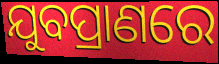
ଯୁବପ୍ରାଣରେ